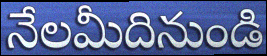
నేలమీదినుండి